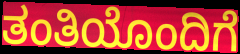
ತಂತಿಯೊಂದಿಗೆ